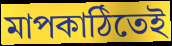
মাপকাঠিতেই